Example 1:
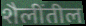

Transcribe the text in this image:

शैलींतील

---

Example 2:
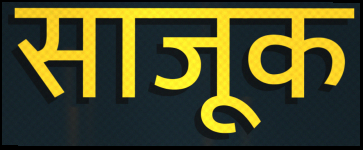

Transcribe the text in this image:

साजूक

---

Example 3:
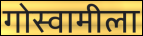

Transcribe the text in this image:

गोस्वामीला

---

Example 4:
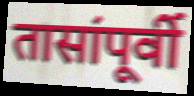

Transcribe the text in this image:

तासांपूर्वी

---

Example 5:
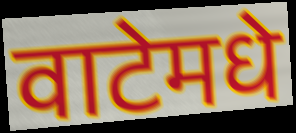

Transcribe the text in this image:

वाटेमधे